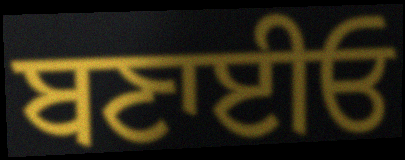
ਬਣਾਈਓ